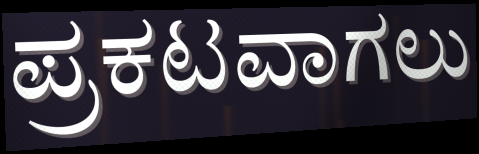
ಪ್ರಕಟವಾಗಲು